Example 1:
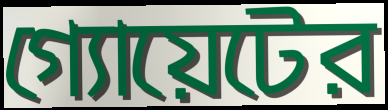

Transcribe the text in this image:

গ্যোয়েটের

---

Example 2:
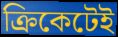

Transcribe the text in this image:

ক্রিকেটেই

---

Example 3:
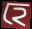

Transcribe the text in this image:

হে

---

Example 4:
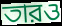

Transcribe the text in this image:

তারও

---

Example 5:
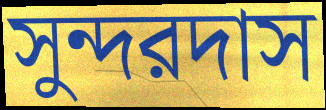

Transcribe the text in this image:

সুন্দরদাস